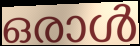
ഒരാൾ